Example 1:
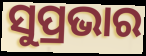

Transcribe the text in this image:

ସୁପ୍ରଭାର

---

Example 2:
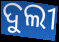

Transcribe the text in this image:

ଦୁଲୀ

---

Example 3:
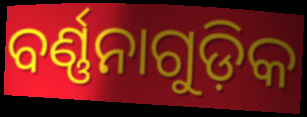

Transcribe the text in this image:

ବର୍ଣ୍ଣନାଗୁଡ଼ିକ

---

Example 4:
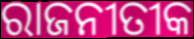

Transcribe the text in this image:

ରାଜନୀତୀକ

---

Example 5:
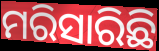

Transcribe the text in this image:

ମରିସାରିଛି